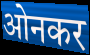
ओनकर